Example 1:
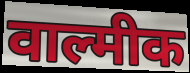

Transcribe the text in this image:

वाल्मीक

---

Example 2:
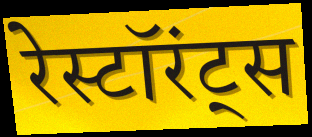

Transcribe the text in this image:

रेस्टॉरंट्‌स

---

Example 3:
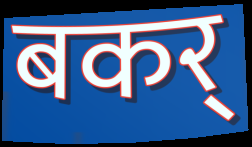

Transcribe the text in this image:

बकर्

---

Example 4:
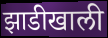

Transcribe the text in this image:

झाडीखाली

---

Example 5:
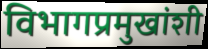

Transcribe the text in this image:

विभागप्रमुखांशी